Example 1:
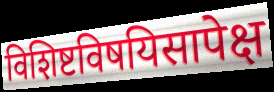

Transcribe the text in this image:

विशिष्टविषयिसापेक्ष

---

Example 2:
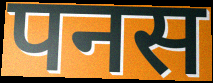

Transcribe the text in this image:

पनस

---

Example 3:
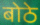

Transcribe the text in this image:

बोठे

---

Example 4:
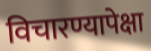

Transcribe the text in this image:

विचारण्यापेक्षा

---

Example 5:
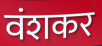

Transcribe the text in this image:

वंशकर